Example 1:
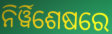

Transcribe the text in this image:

ନିର୍ୱିଶେଷରେ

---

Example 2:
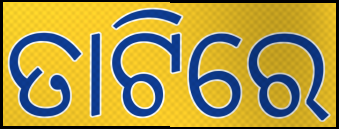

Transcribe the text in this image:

ତାଟିରେ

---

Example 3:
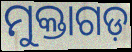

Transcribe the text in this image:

ମୁକ୍ତାଗଡ଼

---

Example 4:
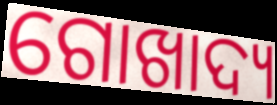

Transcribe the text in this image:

ଗୋଖାଦ୍ୟ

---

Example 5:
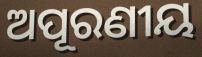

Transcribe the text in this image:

ଅପୂରଣୀୟ